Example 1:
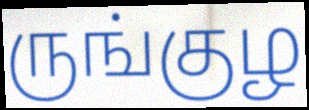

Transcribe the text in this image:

ருங்குழ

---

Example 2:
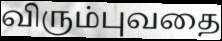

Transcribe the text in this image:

விரும்புவதை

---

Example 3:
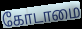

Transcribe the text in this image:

கோடாமை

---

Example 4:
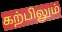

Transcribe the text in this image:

கற்பிலும்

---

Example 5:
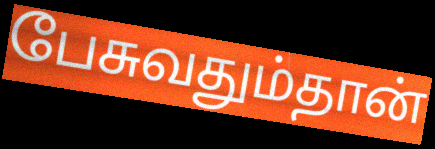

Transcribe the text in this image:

பேசுவதும்தான்